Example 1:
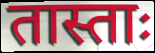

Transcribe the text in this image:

तास्ताः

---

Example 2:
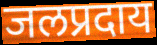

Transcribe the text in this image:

जलप्रदाय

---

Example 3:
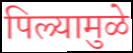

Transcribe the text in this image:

पिल्यामुळे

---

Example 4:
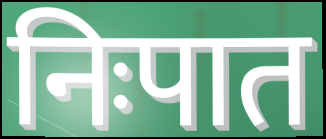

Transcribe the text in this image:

निःपात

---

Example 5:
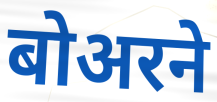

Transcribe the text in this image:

बोअरने